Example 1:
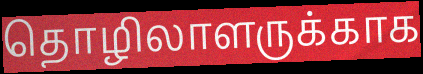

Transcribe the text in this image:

தொழிலாளருக்காக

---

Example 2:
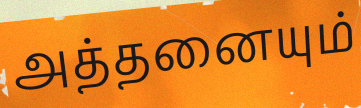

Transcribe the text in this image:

அத்தனையும்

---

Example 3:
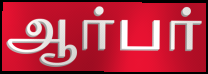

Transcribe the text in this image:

ஆர்பர்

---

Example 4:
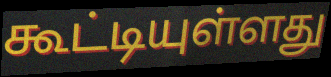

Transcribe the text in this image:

கூட்டியுள்ளது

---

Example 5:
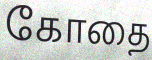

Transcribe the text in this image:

கோதை